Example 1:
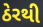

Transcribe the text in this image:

ઠેરથી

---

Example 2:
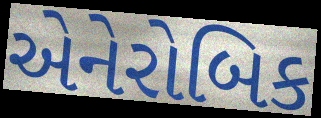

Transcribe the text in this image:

એનેરોબિક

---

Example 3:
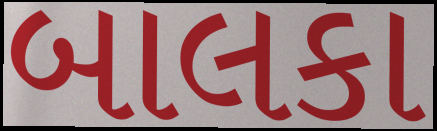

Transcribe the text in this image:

બાલકા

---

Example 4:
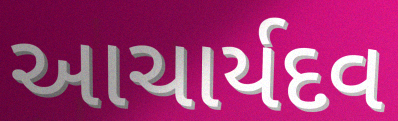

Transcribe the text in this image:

આચાર્યદવ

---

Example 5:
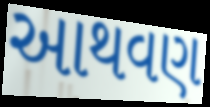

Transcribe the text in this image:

આથવણ